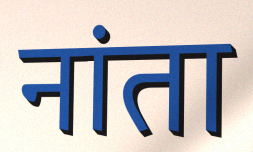
नांता